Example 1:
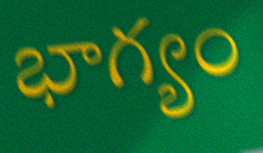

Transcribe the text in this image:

భాగ్యం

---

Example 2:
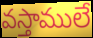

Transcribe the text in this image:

వస్తాములే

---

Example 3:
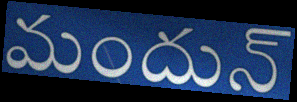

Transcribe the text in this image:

మందున్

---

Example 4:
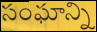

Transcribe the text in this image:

సంఘాన్ని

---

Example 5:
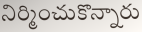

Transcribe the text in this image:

నిర్మించుకొన్నారు